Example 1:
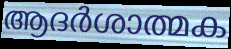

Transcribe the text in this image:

ആദർശാത്മക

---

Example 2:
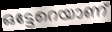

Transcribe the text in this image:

ഒട്ടേറെയാണ്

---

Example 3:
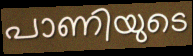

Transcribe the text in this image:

പാണിയുടെ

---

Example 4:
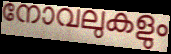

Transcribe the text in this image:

നോവലുകളും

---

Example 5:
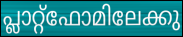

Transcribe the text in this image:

പ്ലാറ്റ്ഫോമിലേക്കു